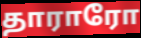
தாராரோ